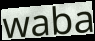
waba